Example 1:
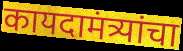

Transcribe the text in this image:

कायदामंत्र्यांचा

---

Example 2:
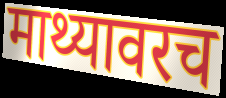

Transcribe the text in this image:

माथ्यावरच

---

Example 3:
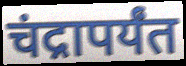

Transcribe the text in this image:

चंद्रापर्यंत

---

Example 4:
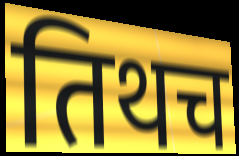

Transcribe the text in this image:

तिथच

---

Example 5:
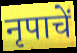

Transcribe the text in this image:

नृपाचें